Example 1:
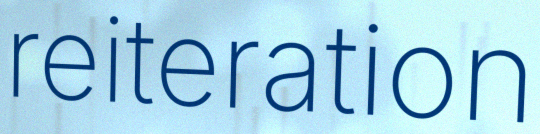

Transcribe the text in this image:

reiteration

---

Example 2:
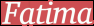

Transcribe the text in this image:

Fatima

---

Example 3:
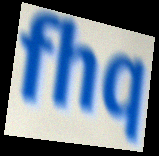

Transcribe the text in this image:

fhq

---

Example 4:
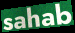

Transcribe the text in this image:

sahab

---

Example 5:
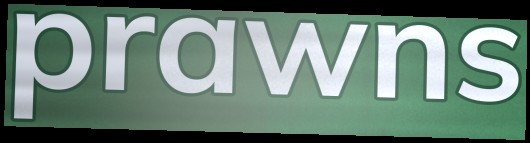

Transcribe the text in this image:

prawns